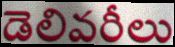
డెలివరీలు